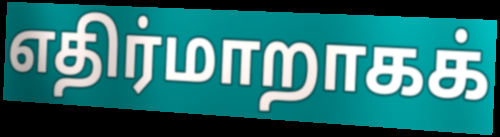
எதிர்மாறாகக்